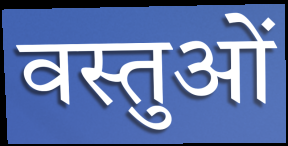
वस्तुओं